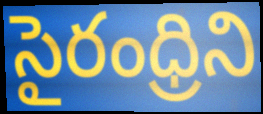
సైరంధ్రిని